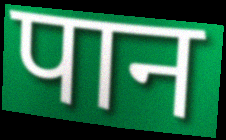
पान